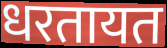
धरतायत